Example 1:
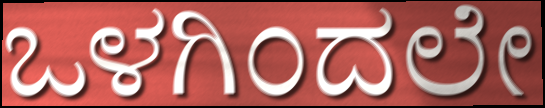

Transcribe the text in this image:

ಒಳಗಿಂದಲೇ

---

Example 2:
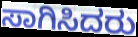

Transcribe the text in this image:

ಸಾಗಿಸಿದರು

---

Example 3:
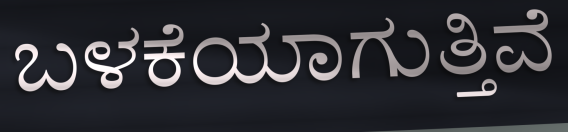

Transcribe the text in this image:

ಬಳಕೆಯಾಗುತ್ತಿವೆ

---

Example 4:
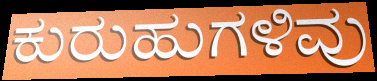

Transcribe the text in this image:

ಕುರುಹುಗಳಿವು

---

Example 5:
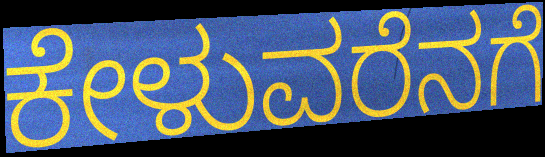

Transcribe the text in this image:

ಕೇಳುವರೆನಗೆ